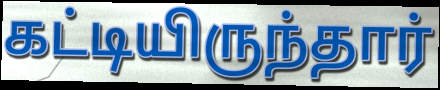
கட்டியிருந்தார்